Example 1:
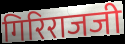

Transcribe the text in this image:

गिरिराजजी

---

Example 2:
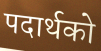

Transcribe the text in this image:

पदार्थको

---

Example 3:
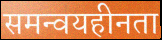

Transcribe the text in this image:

समन्वयहीनता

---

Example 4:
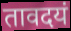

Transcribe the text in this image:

तावदयं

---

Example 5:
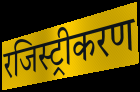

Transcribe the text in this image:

रजिस्‍ट्रीकरण